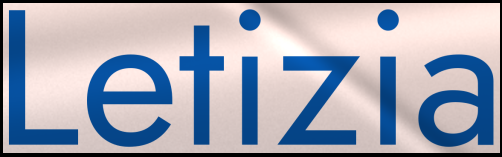
Letizia